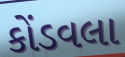
કોંડવલા